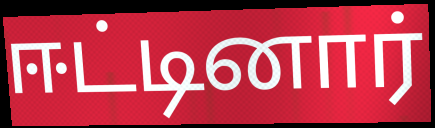
ஈட்டினார்